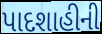
પાદશાહીની